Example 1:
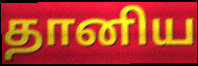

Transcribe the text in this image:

தானிய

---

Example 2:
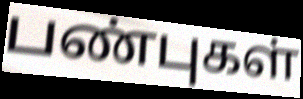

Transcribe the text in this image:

பண்புகள்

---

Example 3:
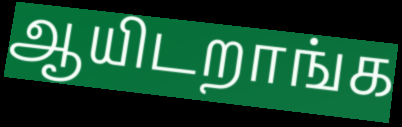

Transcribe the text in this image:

ஆயிடறாங்க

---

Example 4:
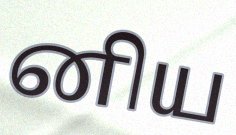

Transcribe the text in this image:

னிய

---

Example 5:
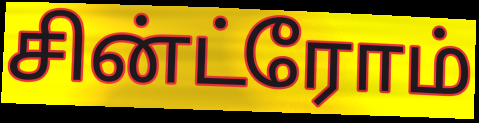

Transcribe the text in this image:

சின்ட்ரோம்